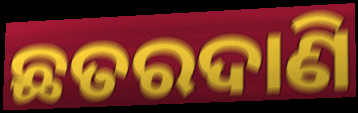
ଛତରଦାଣି